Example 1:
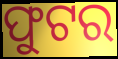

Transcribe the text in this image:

ଫୁଟର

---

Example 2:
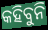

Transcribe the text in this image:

କହିବୁନି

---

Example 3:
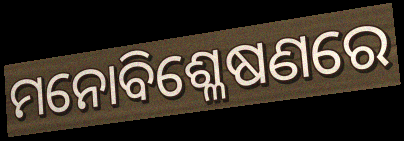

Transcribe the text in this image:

ମନୋବିଶ୍ଳେଷଣରେ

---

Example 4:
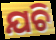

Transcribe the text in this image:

ଯଚି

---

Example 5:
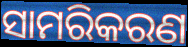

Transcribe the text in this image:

ସାମରିକରଣ